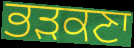
ਭੜਕਣਾ